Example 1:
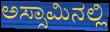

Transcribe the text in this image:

ಅಸ್ಸಾಮಿನಲ್ಲಿ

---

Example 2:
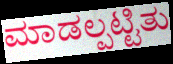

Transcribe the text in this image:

ಮಾಡಲ್ಪಟ್ಟಿತು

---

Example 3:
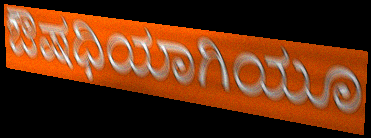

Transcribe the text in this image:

ಔಷಧಿಯಾಗಿಯೂ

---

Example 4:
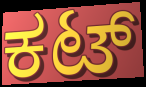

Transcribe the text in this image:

ಕಟ್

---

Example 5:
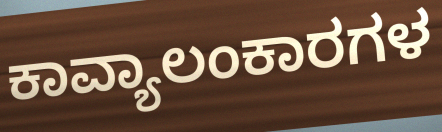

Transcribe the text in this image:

ಕಾವ್ಯಾಲಂಕಾರಗಳ